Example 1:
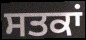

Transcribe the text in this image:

ਸਤਕਾਂ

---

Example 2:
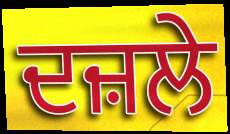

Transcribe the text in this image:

ਦਜ਼ਲੇ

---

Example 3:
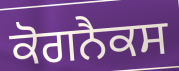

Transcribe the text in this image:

ਕੋਗਨੈਕਸ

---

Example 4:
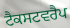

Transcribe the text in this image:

ਟੈਕਸਟਵਰੈਪ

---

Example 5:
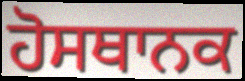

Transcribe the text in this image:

ਹੋਸਥਾਨਕ